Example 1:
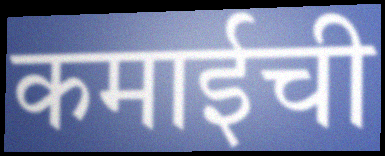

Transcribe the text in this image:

कमाईची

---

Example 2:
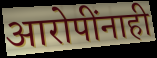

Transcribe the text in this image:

आरोपींनाही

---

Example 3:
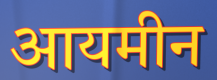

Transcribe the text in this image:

आयमीन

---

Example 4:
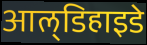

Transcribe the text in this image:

आल्डिहाइडे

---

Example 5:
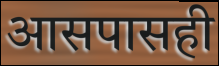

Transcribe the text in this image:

आसपासही